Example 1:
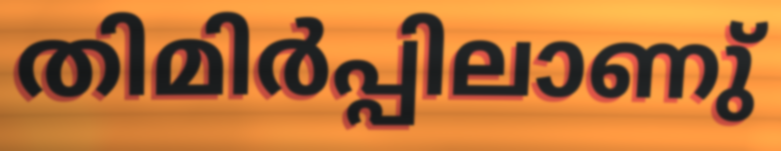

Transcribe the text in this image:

തിമിർപ്പിലാണു്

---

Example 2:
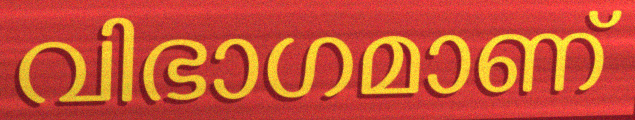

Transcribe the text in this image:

വിഭാഗമാണ്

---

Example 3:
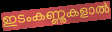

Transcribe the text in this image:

ഇടംകണ്ണുകളാൽ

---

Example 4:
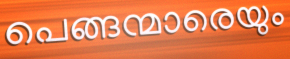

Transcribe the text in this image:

പെങ്ങന്മാരെയും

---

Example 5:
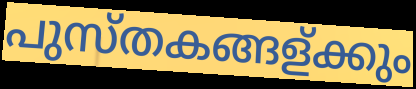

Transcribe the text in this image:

പുസ്തകങ്ങള്ക്കും